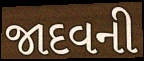
જાદવની